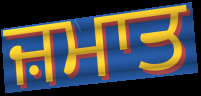
ਜ਼ਮਾਤ